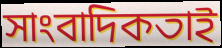
সাংবাদিকতাই